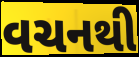
વચનથી